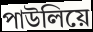
পাউলিয়ে